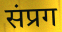
संप्रग